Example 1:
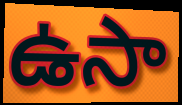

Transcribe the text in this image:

ఉసా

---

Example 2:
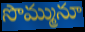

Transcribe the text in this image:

సొమ్మునూ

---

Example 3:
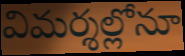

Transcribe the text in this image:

విమర్శల్లోనూ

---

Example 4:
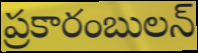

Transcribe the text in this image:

ప్రకారంబులన్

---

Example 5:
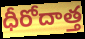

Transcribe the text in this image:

ధీరోదాత్త